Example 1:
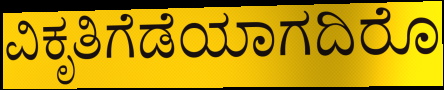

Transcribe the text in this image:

ವಿಕೃತಿಗೆಡೆಯಾಗದಿರೊ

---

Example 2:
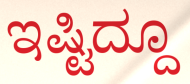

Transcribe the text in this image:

ಇಷ್ಟಿದ್ದೂ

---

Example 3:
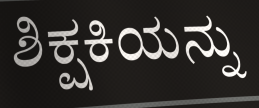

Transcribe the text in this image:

ಶಿಕ್ಷಕಿಯನ್ನು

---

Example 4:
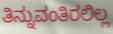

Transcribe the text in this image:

ತಿನ್ನುವಂತಿರಲಿಲ್ಲ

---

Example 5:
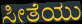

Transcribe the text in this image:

ಸೀತೆಯು